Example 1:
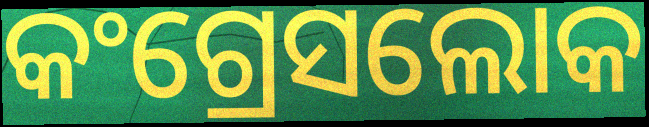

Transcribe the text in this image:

କଂଗ୍ରେସଲୋକ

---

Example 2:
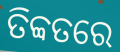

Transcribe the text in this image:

ତିବ୍ବତରେ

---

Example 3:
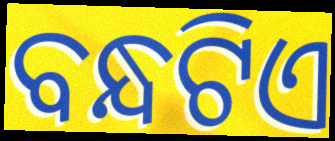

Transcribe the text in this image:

ବନ୍ଧଟିଏ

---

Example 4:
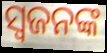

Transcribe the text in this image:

ସ୍ଵଜନଙ୍କ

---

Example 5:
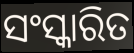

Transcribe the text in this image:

ସଂସ୍କାରିତ